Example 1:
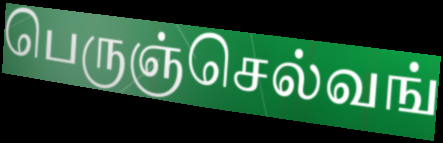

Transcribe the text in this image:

பெருஞ்செல்வங்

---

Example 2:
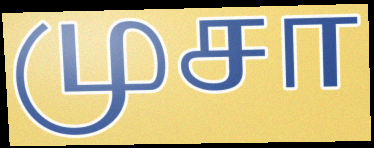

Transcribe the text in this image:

முசா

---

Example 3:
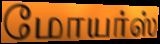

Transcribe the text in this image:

மோயர்ஸ்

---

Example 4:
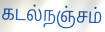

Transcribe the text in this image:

கடல்நஞ்சம்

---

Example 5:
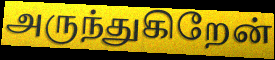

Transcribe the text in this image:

அருந்துகிறேன்